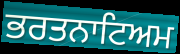
ਭਰਤਨਾਟਿਅਮ